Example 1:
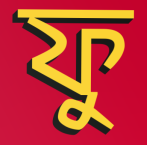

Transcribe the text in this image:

ফু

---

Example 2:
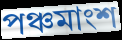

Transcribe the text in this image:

পঞ্চমাংশ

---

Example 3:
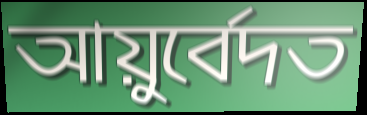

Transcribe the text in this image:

আয়ুৰ্বেদত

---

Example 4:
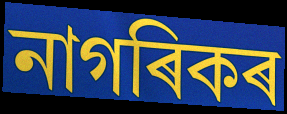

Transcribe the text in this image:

নাগৰিকৰ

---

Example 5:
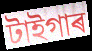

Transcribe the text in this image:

টাইগাৰ